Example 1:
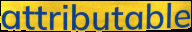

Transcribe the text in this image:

attributable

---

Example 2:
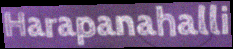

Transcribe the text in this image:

Harapanahalli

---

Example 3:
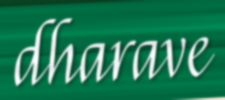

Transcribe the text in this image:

dharave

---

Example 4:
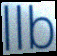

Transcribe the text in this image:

llb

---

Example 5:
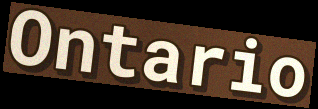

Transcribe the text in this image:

Ontario